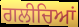
ਗਲੀਚਿਆਂ